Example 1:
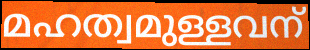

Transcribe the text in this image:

മഹത്വമുള്ളവന്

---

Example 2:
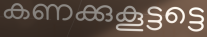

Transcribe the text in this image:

കണക്കുകൂട്ടട്ടെ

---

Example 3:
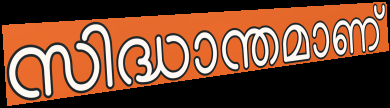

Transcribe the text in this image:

സിദ്ധാന്തമാണ്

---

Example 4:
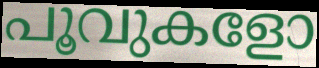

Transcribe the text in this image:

പൂവുകളോ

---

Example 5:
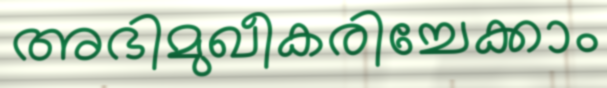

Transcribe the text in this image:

അഭിമുഖീകരിച്ചേക്കാം